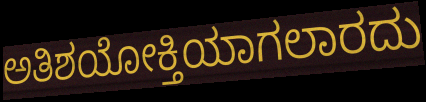
ಅತಿಶಯೋಕ್ತಿಯಾಗಲಾರದು